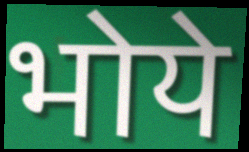
भोये